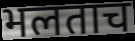
भलताच